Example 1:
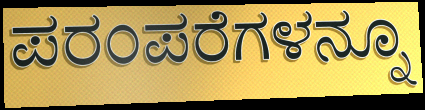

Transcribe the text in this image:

ಪರಂಪರೆಗಳನ್ನೂ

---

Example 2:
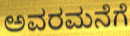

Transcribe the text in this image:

ಅವರಮನೆಗೆ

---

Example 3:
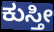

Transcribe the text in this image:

ಕುಸ್ತೀ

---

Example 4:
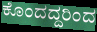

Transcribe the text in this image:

ಕೊಂದದ್ದರಿಂದ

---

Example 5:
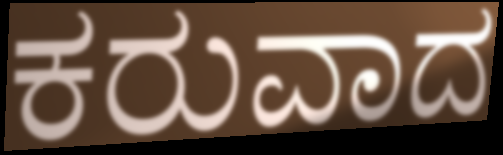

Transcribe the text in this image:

ಕರುವಾದ